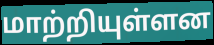
மாற்றியுள்ளன